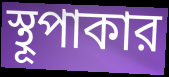
স্থূপাকার